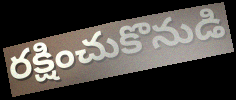
రక్షించుకొనుడి